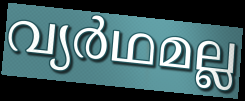
വ്യർഥമല്ല